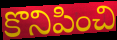
కొనిపించి